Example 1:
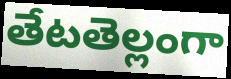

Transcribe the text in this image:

తేటతెల్లంగా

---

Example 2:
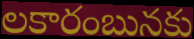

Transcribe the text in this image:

లకారంబునకు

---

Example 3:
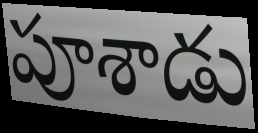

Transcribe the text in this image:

పూశాడు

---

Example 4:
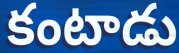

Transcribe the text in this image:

కంటాడు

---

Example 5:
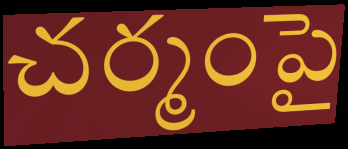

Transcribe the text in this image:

చర్మంపై